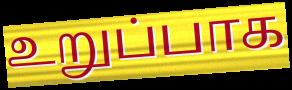
உறுப்பாக